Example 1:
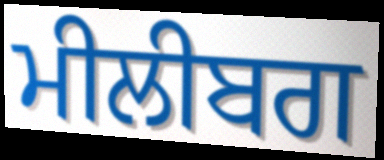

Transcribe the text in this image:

ਮੀਲੀਬਗ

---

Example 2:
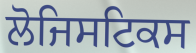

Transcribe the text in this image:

ਲੋਜਿਸਟਿਕਸ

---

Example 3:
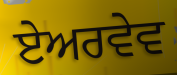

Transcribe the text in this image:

ਏਅਰਵੇਵ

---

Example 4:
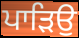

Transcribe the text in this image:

ਪਾੜਿਉ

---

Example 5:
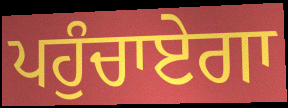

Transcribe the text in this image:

ਪਹੁੰਚਾਏਗਾ